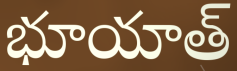
భూయాత్